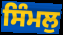
ਸਿੰਮਲੁ